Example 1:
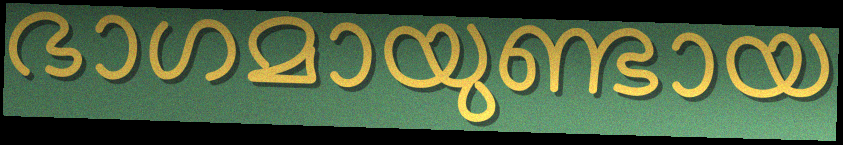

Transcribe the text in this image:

ഭാഗമായുണ്ടായ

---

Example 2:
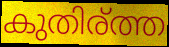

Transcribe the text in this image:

കുതിര്ത്ത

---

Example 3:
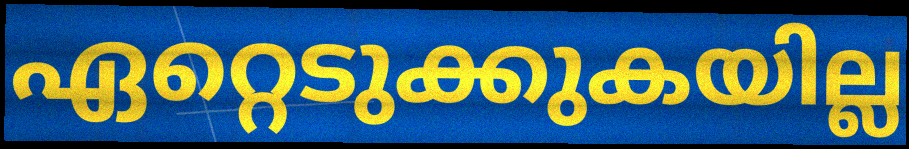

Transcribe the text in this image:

ഏറ്റെടുക്കുകയില്ല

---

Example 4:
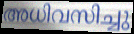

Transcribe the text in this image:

അധിവസിച്ചു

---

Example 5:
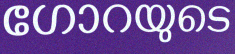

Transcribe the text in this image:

ഗോറയുടെ